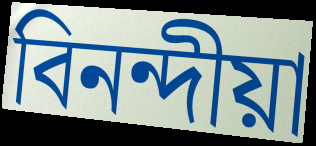
বিনন্দীয়া